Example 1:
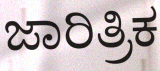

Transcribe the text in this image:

ಜಾರಿತ್ರಿಕ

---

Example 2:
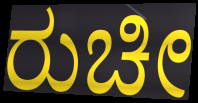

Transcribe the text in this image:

ರುಚೀ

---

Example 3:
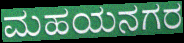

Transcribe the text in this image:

ಮಹಯನಗರ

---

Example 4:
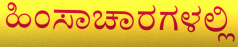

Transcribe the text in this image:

ಹಿಂಸಾಚಾರಗಳಲ್ಲಿ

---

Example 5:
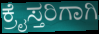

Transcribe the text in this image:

ಕ್ರೈಸ್ತರಿಗಾಗಿ